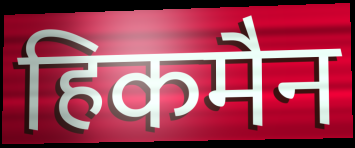
हिकमैन